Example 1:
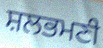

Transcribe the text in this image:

ਸ਼ਲਭਮਣੀ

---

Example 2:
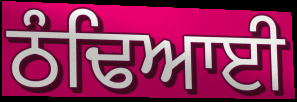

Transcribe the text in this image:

ਠੰਢਿਆਈ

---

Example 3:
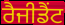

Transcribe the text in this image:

ਰੈਜੀਡੈਂਟ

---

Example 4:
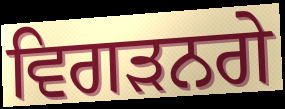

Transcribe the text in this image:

ਵਿਗੜਨਗੇ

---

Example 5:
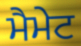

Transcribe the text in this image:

ਮੈਮੇਟ